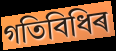
গতিবিধিৰ